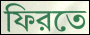
ফিরতে